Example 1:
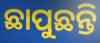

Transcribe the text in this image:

ଛାପୁଛନ୍ତି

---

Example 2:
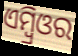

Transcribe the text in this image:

ଏମ୍ବ୍ରିଓର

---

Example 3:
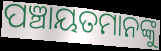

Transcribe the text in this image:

ପଞ୍ଚାୟତମାନଙ୍କୁ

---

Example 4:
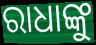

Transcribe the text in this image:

ରାଧାଙ୍କୁ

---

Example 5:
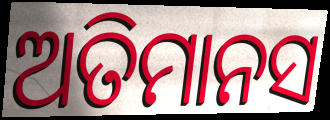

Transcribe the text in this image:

ଅତିମାନସ